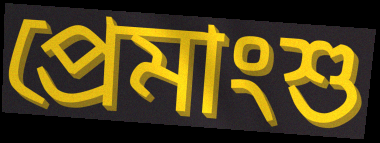
প্রেমাংশু